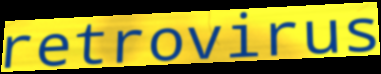
retrovirus